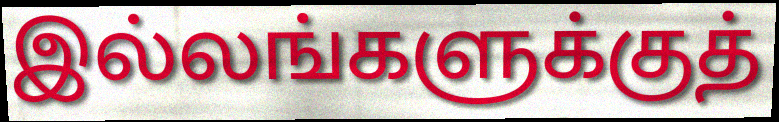
இல்லங்களுக்குத்